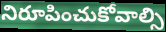
నిరూపించుకోవాల్సి